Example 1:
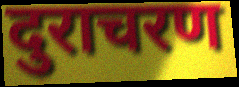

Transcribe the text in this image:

दुराचरण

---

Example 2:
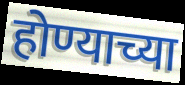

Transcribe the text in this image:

होण्‍याच्‍या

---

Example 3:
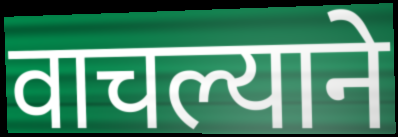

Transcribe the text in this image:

वाचल्याने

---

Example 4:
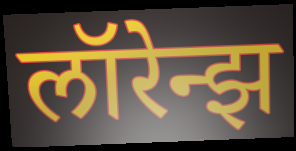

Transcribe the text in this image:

लॉरेन्झ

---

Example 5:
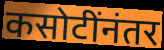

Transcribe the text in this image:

कसोटींनंतर